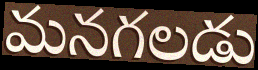
మనగలడు